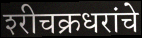
श्रीचक्रधरांचे